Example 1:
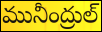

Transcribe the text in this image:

మునీంద్రుల్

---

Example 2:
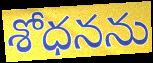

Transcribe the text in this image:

శోధనను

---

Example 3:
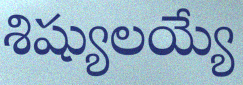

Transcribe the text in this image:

శిష్యులయ్యే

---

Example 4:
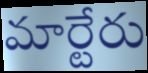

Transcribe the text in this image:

మార్టేరు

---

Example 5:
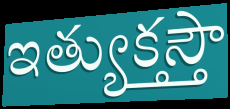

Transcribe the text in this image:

ఇత్యుక్తస్తౌ